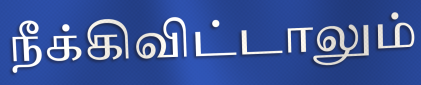
நீக்கிவிட்டாலும்